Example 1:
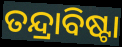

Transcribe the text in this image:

ତନ୍ଦ୍ରାବିଷ୍ଟା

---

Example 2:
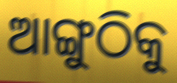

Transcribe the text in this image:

ଆଙ୍ଗୁଠିକୁ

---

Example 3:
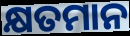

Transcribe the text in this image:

କ୍ଷତମାନ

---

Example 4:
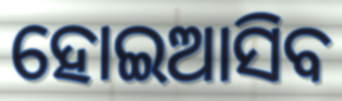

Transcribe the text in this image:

ହୋଇଆସିବ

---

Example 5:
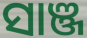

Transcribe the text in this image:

ସାଞ୍ଜ